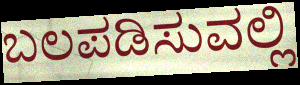
ಬಲಪಡಿಸುವಲ್ಲಿ